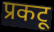
प्रकटू